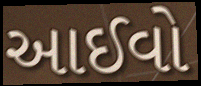
આઈવો